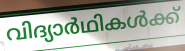
വിദ്യാർഥികൾക്ക്